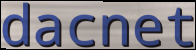
dacnet